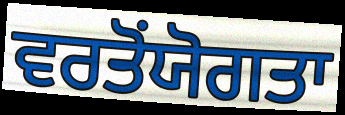
ਵਰਤੋਂਯੋਗਤਾ